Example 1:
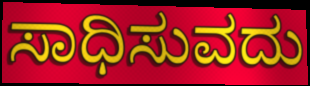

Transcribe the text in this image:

ಸಾಧಿಸುವದು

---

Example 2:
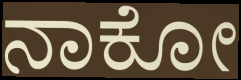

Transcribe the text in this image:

ನಾಕೋ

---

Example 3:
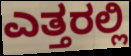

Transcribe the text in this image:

ಎತ್ತರಲ್ಲಿ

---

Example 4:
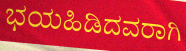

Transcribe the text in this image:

ಭಯಹಿಡಿದವರಾಗಿ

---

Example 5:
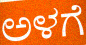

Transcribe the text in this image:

ಅಳಗೆ